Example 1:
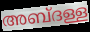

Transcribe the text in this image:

അബ്ദള്ള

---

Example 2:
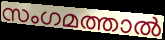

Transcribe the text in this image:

സംഗമത്താൽ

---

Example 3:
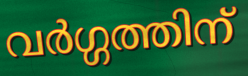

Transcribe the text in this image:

വർഗ്ഗത്തിന്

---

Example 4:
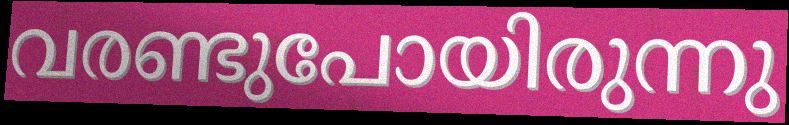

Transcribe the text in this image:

വരണ്ടുപോയിരുന്നു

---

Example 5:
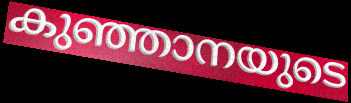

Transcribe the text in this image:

കുഞ്ഞാനയുടെ